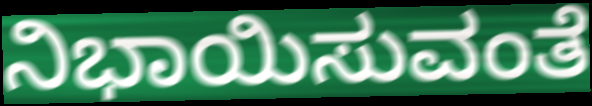
ನಿಭಾಯಿಸುವಂತೆ